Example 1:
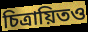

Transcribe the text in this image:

চিত্রায়িতও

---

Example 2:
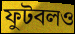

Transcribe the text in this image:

ফুটবলও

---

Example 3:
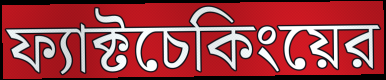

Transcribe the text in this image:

ফ্যাক্টচেকিংয়ের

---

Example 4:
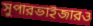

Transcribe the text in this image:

সুপারভাইজারও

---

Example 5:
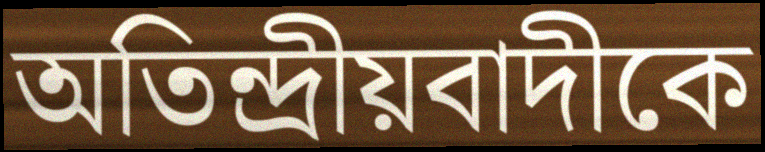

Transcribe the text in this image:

অতিন্দ্রীয়বাদীকে